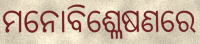
ମନୋବିଶ୍ଳେଷଣରେ